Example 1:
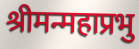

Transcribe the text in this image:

श्रीमन्महाप्रभु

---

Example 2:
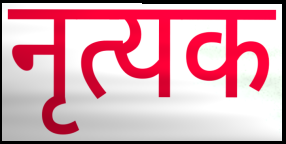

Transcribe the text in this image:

नृत्यक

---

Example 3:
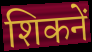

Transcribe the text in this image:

शिकनें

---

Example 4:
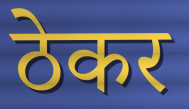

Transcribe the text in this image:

ठेकर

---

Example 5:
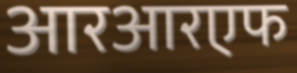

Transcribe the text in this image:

आरआरएफ